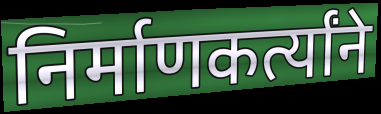
निर्माणकर्त्यांने